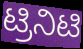
ಟ್ರಿನಿಟಿ